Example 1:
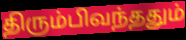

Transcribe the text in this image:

திரும்பிவந்ததும்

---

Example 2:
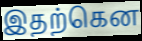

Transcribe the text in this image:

இதற்கென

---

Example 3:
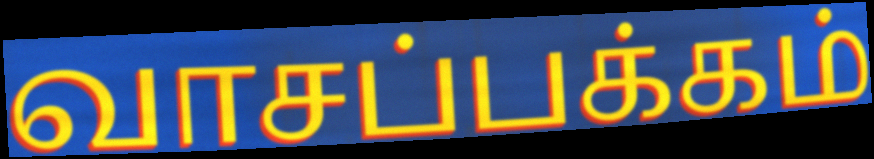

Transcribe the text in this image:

வாசப்பக்கம்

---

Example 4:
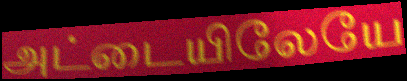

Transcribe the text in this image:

அட்டையிலேயே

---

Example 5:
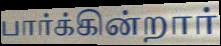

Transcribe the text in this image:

பார்க்கின்றார்